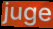
juge